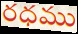
రధము